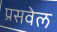
प्रसवेल